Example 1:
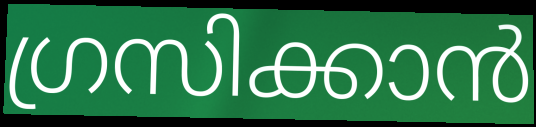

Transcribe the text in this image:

ഗ്രസിക്കാൻ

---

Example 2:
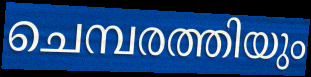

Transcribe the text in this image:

ചെമ്പരത്തിയും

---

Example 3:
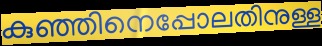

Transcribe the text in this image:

കുഞ്ഞിനെപ്പോലതിനുള്ള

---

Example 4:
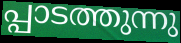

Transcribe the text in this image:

പ്പാടത്തുന്നു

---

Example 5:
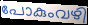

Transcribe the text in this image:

പോകുംവഴി